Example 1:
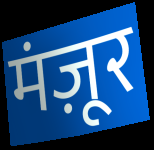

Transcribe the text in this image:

मंज़ूर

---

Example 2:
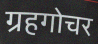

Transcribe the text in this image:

ग्रहगोचर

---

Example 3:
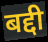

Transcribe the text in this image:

बद्दी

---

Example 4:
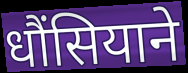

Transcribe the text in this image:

धौंसियाने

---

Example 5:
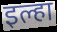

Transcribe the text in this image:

इल्हा